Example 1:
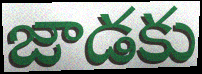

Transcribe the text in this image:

జాడకు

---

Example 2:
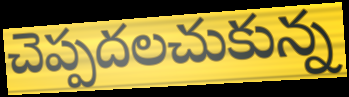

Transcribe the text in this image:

చెప్పదలచుకున్న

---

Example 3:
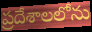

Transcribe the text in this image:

ప్రదేశాలలోను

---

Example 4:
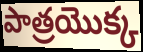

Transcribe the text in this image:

పాత్రయొక్క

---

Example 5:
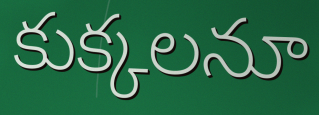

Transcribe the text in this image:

కుక్కలనూ